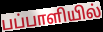
பப்பாளியில்